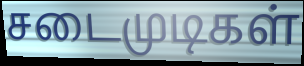
சடைமுடிகள்